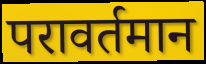
परावर्तमान